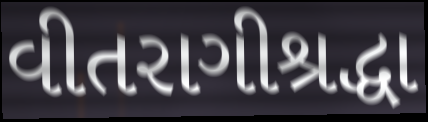
વીતરાગીશ્રદ્ધા